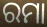
ରମା